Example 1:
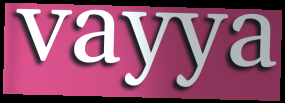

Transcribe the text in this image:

vayya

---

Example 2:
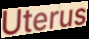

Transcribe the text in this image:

Uterus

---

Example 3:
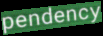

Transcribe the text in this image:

pendency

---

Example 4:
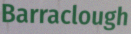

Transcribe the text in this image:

Barraclough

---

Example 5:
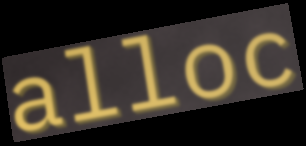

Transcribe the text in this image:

alloc